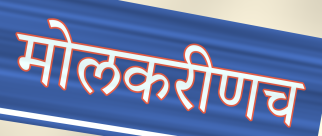
मोलकरीणच